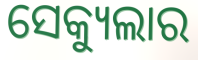
ସେକ୍ୟୁଲାର